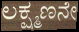
ಲಕ್ಷ್ಮಣನೇ